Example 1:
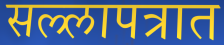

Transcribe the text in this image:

सल्लापत्रात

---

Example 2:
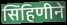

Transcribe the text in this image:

सिंहिणीने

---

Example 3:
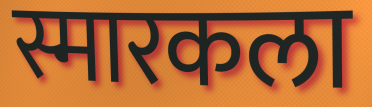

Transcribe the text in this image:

स्मारकला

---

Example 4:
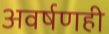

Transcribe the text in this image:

अवर्षणही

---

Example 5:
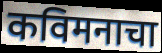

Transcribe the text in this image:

कविमनाचा